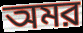
অমর